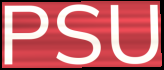
PSU